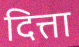
दित्ता